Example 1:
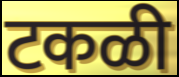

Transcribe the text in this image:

टकळी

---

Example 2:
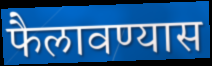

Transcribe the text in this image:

फैलावण्यास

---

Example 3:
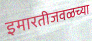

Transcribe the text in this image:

इमारतीजवळच्या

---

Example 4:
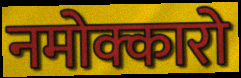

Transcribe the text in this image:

नमोक्कारो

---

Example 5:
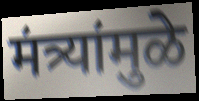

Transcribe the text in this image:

मंत्र्यांमुळे